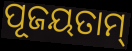
ପୂଜୟତାମ୍